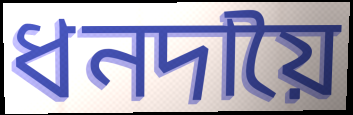
ধনদায়ৈ